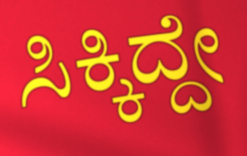
ಸಿಕ್ಕಿದ್ದೇ